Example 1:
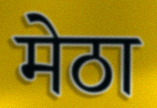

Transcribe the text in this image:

मेठा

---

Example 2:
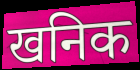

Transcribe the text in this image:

खनिक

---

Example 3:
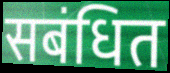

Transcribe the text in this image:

सबंधित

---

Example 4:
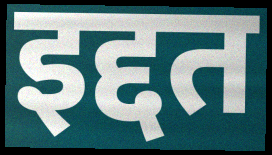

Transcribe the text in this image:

इद्दत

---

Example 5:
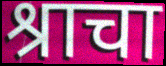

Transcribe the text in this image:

श्राचा